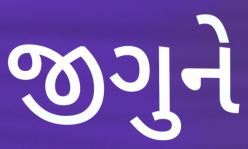
જીગુને